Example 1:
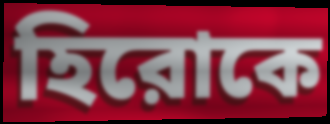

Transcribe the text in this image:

হিরোকে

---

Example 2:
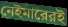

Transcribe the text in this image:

নেইমারেরই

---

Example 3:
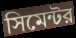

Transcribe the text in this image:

সিমেন্টর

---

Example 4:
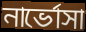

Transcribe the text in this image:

নার্ভোসা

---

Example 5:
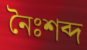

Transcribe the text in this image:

নৈঃশব্দ